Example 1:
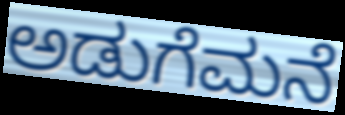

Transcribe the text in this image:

ಅಡುಗೆಮನೆ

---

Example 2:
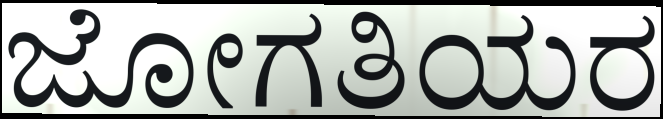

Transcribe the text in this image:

ಜೋಗತಿಯರ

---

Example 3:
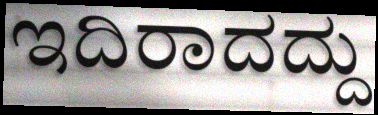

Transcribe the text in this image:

ಇದಿರಾದದ್ದು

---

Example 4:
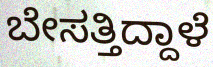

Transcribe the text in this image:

ಬೇಸತ್ತಿದ್ದಾಳೆ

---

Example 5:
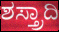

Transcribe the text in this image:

ಶಸ್ತ್ರಾದಿ